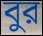
বুর